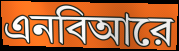
এনবিআরে